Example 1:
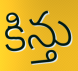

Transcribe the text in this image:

కిన్తు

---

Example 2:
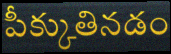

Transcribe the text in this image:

పీక్కుతినడం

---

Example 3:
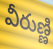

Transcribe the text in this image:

వీరుణ్ణి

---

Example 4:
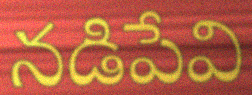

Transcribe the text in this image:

నడిపేవి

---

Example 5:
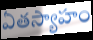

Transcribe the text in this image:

ఏతస్యాహం